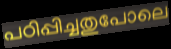
പഠിപ്പിച്ചതുപോലെ